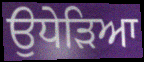
ਉਧੇੜਿਆ